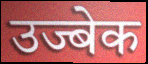
उज्बेक